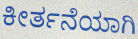
ಕೀರ್ತನೆಯಾಗಿ